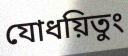
যোধয়িতুং